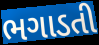
ભગાડતી